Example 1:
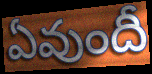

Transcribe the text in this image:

ఏవుందీ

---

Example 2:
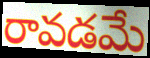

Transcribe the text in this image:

రావడమే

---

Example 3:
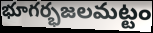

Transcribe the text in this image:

భూగర్భజలమట్టం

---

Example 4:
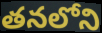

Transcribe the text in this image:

తనలోని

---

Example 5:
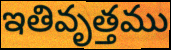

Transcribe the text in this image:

ఇతివృత్తము